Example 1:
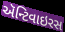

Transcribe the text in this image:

ઍન્ટિવાઇરસ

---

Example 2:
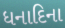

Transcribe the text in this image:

ધનાદિના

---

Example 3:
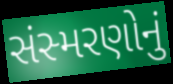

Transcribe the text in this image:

સંસ્મરણોનું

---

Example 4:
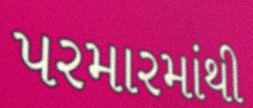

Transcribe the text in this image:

પરમારમાંથી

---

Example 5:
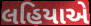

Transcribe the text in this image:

લહિયાએ